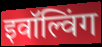
इवॉल्विंग